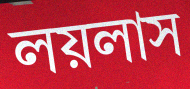
লয়লাস